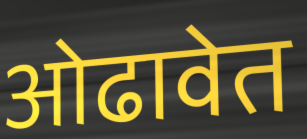
ओढावेत